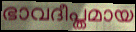
ഭാവദീപ്തമായ